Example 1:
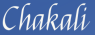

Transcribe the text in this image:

Chakali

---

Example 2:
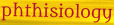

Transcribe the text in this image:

phthisiology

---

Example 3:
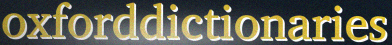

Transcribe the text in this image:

oxforddictionaries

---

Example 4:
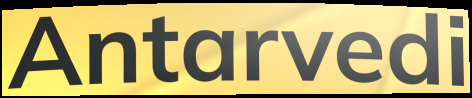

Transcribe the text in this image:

Antarvedi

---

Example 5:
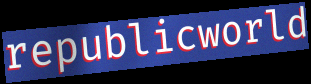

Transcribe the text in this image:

republicworld